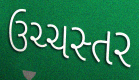
ઉચ્ચસ્તર